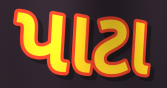
પાટા